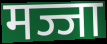
मज्जा